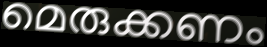
മെരുക്കണം